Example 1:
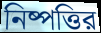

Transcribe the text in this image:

নিষ্পত্তির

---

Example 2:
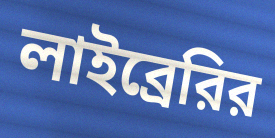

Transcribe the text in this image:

লাইব্রেরির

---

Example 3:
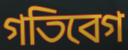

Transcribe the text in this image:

গতিবেগ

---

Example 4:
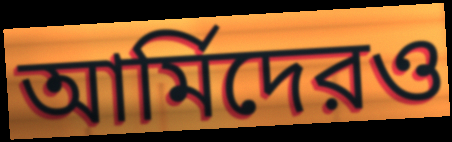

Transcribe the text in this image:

আর্মিদেরও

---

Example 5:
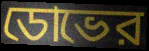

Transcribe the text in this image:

ডোভের